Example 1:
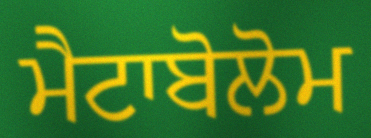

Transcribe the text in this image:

ਮੈਟਾਬੋਲੋਮ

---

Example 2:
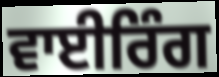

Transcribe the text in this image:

ਵਾਈਰਿੰਗ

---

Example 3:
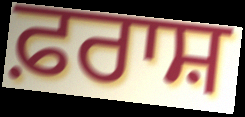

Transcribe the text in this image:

ਫ਼ਰਾਸ਼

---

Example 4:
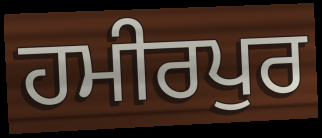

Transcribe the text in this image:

ਹਮੀਰਪੁਰ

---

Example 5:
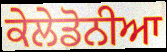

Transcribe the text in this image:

ਕੇਲੇਡੋਨੀਆ